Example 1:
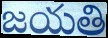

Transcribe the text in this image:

జయతి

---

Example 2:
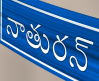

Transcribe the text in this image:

నాతురన్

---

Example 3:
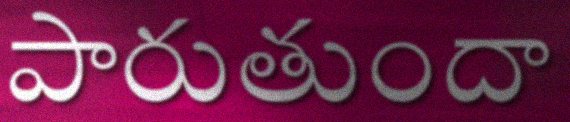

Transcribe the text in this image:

పారుతుందా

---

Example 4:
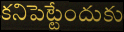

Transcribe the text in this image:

కనిపెట్టేందుకు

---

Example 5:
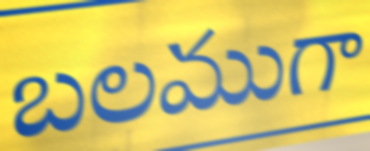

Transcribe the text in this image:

బలముగా